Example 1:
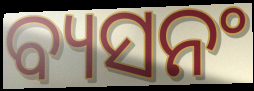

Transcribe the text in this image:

ବ୍ୟସନଂ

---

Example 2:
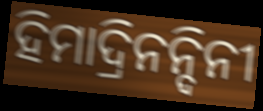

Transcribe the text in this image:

ହିମାଦ୍ରିନନ୍ଦିନୀ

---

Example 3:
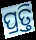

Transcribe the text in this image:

ପ୍ରତ୍ତି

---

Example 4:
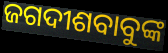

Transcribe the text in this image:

ଜଗଦୀଶବାବୁଙ୍କ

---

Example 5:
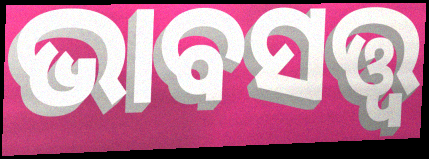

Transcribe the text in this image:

ଭାବସତ୍ତ୍ୱ